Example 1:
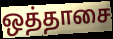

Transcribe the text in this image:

ஒத்தாசை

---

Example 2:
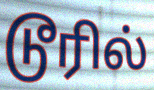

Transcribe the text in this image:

டூரில்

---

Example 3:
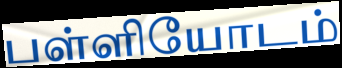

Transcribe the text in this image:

பள்ளியோடம்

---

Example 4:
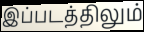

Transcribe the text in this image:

இப்படத்திலும்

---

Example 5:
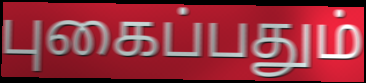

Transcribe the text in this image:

புகைப்பதும்